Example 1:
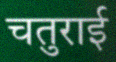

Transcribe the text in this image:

चतुराई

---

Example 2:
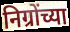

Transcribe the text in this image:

निग्रोंच्या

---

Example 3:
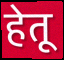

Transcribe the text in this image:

हेतू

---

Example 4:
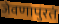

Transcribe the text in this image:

जेवणापुरतं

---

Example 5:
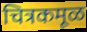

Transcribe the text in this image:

चित्रकमूळ